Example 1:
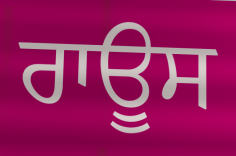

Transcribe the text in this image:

ਰਾਊਸ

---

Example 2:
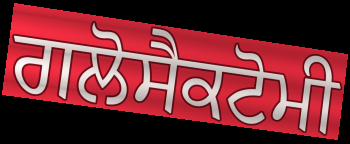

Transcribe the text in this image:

ਗਲੋਸੈਕਟੋਮੀ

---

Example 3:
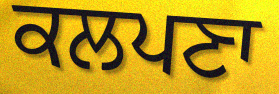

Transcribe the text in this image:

ਕਲਪਣਾ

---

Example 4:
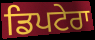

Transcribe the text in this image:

ਡਿਪਟੇਰਾ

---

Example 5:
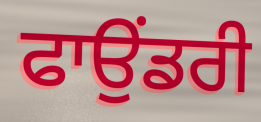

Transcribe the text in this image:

ਫਾਉਂਡਰੀ